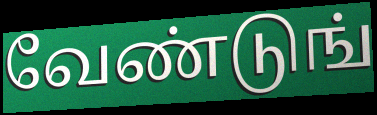
வேண்டுங்